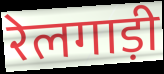
रेलगाड़ी